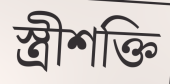
স্ত্রীশক্তি